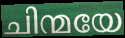
ചിന്മയേ